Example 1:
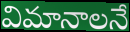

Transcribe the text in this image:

విమానాలనే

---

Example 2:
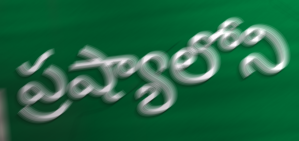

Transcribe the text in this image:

ప్రష్యాలోని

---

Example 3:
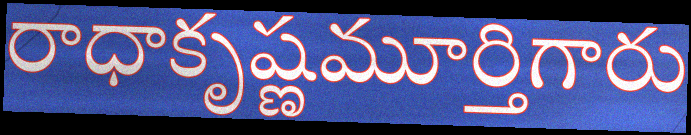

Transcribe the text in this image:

రాధాకృష్ణమూర్తిగారు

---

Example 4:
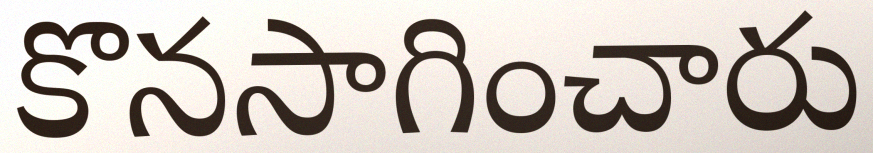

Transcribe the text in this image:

కొనసాగించారు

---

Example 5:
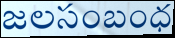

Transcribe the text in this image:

జలసంబంధ